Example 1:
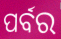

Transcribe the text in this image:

ପର୍ବର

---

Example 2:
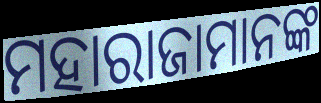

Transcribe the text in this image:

ମହାରାଜାମାନଙ୍କ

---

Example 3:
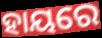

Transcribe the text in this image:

ହାୟରେ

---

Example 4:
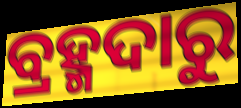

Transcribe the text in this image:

ବ୍ରହ୍ମଦାରୁ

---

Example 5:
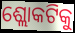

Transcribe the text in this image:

ଶ୍ଲୋକଟିକୁ